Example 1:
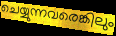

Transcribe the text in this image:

ചെയ്യുന്നവരെങ്കിലും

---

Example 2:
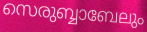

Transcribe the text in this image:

സെരുബ്ബാബേലും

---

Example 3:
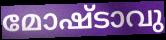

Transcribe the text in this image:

മോഷ്ടാവു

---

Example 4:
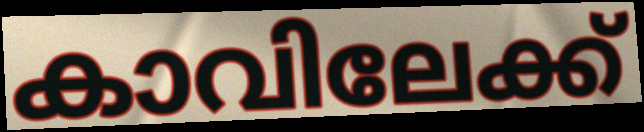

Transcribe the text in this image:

കാവിലേക്ക്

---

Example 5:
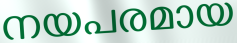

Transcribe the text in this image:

നയപരമായ